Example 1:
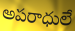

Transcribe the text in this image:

అపరాధులే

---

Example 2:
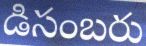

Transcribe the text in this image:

డిసంబరు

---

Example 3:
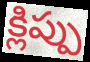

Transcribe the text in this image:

క్లిప్పు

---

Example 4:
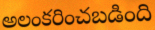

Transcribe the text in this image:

అలంకరించబడింది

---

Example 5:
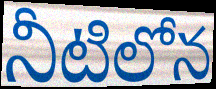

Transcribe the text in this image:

నీటిలోన